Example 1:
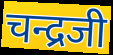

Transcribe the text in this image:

चन्द्रजी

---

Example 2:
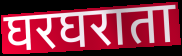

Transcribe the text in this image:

घरघराता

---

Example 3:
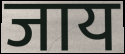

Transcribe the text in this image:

जाय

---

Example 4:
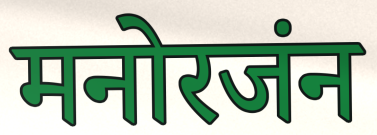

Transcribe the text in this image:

मनोरजंन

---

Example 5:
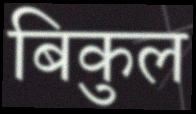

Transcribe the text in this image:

बिकुल